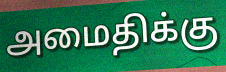
அமைதிக்கு